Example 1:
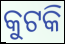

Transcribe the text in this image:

କୁଟକି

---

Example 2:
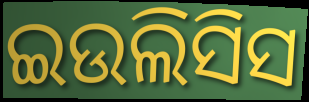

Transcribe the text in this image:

ଇଉଲିସିସ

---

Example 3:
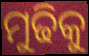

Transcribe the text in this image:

ମୁଢିକୁ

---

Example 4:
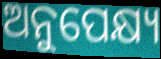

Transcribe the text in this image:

ଅନୁପେକ୍ଷ୍ୟ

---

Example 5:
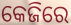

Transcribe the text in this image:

କେଜିରେ